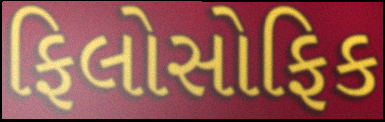
ફિલોસોફિક